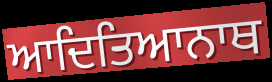
ਆਦਿਤਿਆਨਾਥ